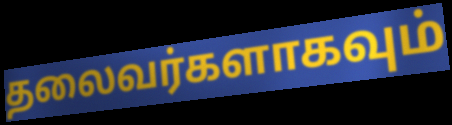
தலைவர்களாகவும்